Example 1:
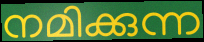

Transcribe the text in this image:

നമിക്കുന്ന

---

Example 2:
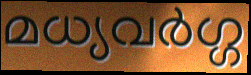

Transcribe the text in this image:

മധ്യവർഗ്ഗ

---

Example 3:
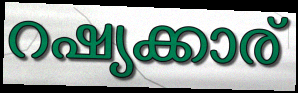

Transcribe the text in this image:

റഷ്യക്കാര്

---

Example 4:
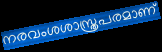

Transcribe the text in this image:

നരവംശശാസ്ത്രപരമാണ്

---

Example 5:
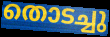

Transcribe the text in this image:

തൊടച്ചു